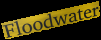
Floodwater